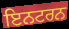
ਇਨਟਰਨ